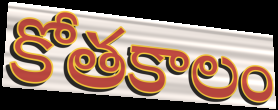
కోతకాలం